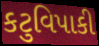
કટુવિપાકી